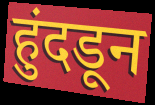
हुंदडून